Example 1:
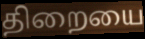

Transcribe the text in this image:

திறையை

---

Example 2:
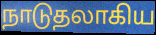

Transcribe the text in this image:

நாடுதலாகிய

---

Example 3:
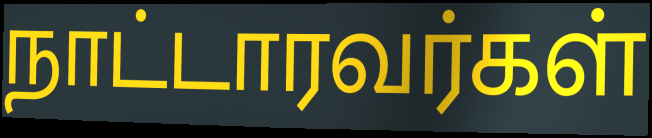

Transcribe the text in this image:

நாட்டாரவர்கள்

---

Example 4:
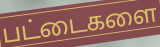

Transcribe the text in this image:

பட்டைகளை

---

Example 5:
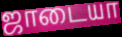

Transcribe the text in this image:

ஜாடையா